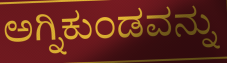
ಅಗ್ನಿಕುಂಡವನ್ನು